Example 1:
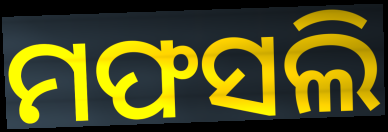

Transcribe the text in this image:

ମଫସଲି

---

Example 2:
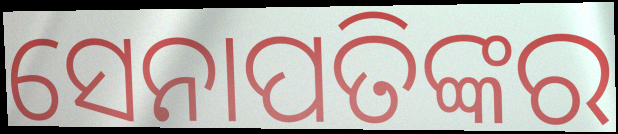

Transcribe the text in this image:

ସେନାପତିଙ୍କର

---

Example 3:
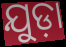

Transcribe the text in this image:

ଯୁଡ଼ା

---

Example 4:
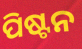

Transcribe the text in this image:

ପିଷ୍ଟନ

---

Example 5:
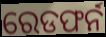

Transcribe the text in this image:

ରେଡଫର୍ନ